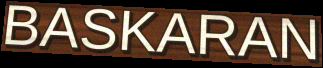
BASKARAN